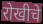
रोखीचे